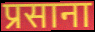
प्रसाना